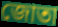
জোতা